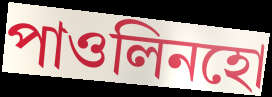
পাওলিনহো